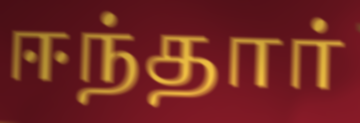
ஈந்தார்